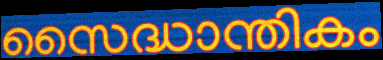
സൈദ്ധാന്തികം